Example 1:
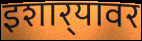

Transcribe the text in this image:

इशार्‍यावर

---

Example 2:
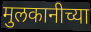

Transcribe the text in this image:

मुलकानीच्या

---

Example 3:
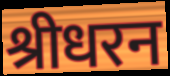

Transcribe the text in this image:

श्रीधरन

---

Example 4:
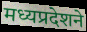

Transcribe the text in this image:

मध्यप्रदेशने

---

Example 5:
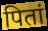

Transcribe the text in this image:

पितां